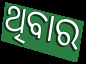
ଥିବାର